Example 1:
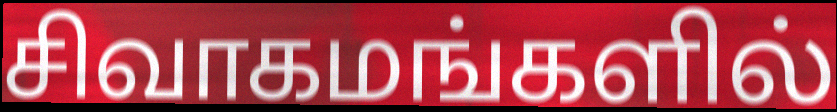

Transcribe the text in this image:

சிவாகமங்களில்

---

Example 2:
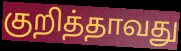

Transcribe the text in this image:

குறித்தாவது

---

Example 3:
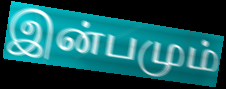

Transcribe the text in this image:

இன்பமும்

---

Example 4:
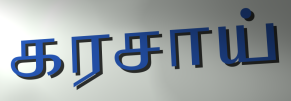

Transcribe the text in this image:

கரசாய்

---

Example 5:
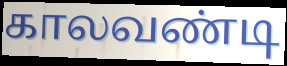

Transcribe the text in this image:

காலவண்டி